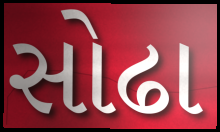
સોઢા